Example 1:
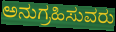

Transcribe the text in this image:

ಅನುಗ್ರಹಿಸುವರು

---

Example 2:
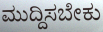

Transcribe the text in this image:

ಮುದ್ದಿಸಬೇಕು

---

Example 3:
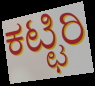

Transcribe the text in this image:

ಕಟ್ಟಿರಿ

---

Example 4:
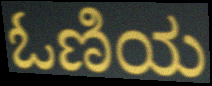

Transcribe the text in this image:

ಓಣಿಯ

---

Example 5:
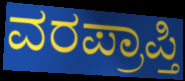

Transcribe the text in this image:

ವರಪ್ರಾಪ್ತಿ